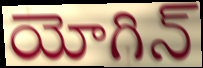
యోగిన్